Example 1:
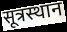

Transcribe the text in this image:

सूत्रस्थान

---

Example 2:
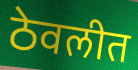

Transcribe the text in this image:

ठेवलीत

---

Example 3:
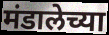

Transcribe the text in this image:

मंडालेच्या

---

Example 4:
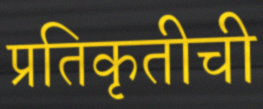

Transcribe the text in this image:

प्रतिकृतीची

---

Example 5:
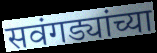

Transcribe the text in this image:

सवंगड्यांच्या